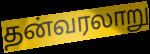
தன்வரலாறு